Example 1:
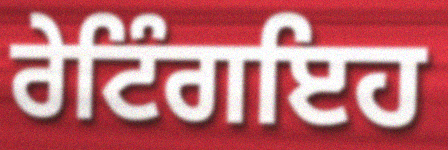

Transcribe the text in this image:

ਰੇਟਿੰਗਇਹ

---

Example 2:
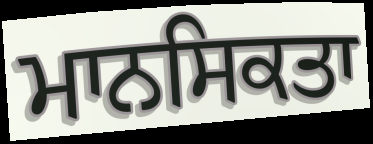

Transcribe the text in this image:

ਮਾਨਸਿਕਤਾ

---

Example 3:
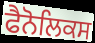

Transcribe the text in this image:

ਫੈਨੋਲਿਕਸ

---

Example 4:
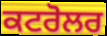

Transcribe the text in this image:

ਕਟਰੋਲਰ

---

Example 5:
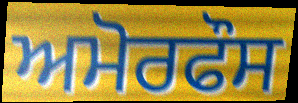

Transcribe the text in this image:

ਅਮੋਰਫੌਸ